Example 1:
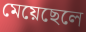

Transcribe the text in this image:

মেয়েছেলে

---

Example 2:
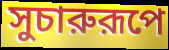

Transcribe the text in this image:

সুচারুরূপে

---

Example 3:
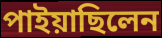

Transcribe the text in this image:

পাইয়াছিলেন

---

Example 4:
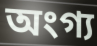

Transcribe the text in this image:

অংগ্য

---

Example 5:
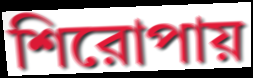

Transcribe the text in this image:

শিরোপায়